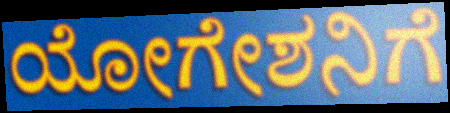
ಯೋಗೇಶನಿಗೆ